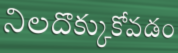
నిలదొక్కుకోవడం